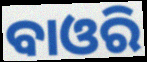
ବାଓରି